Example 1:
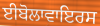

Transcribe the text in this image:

ਈਬੋਲਾਵਾਇਰਸ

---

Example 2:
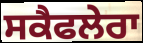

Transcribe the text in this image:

ਸਕੈਫਲੇਰਾ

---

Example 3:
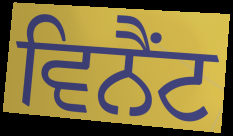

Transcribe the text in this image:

ਵਿਨੈਂਟ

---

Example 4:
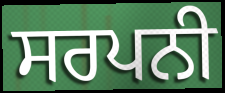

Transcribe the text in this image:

ਸਰਪਨੀ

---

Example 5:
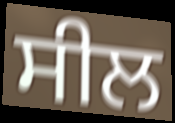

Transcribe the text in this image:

ਸੀਲ